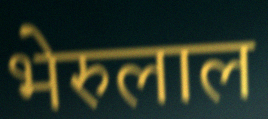
भेरुलाल